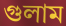
গুলাম